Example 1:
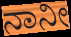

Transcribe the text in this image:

ನಾನೀ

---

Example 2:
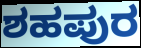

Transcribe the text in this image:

ಶಹಪುರ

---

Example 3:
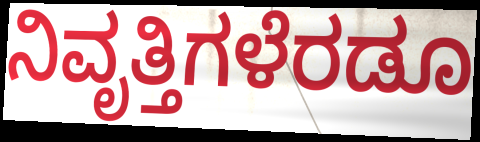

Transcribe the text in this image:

ನಿವೃತ್ತಿಗಳೆರಡೂ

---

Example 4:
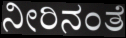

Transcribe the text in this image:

ನೀರಿನಂತೆ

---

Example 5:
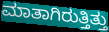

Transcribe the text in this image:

ಮಾತಾಗಿರುತ್ತಿತ್ತು